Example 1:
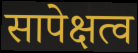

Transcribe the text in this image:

सापेक्षत्व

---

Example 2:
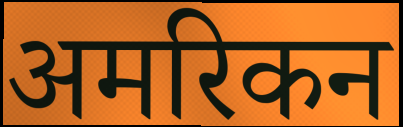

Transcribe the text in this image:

अमरिकन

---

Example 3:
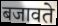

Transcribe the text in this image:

बजावते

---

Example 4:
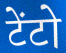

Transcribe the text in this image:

टेंटो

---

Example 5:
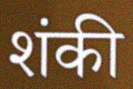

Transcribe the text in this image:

शंकी